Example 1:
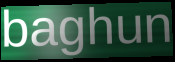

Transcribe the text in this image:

baghun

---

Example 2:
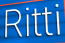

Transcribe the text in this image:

Ritti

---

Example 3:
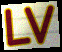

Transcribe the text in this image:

LV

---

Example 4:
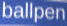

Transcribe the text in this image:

ballpen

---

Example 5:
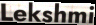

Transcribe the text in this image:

Lekshmi